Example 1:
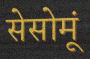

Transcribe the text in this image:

सेसोमूं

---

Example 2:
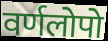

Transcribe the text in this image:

वर्णलोपो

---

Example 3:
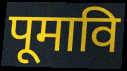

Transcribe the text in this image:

पूमावि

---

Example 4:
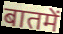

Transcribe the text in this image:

बातमें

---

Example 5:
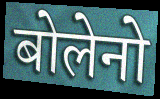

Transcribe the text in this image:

बोलेनो